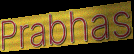
Prabhas